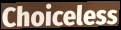
Choiceless